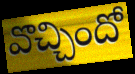
వొచ్చిందో